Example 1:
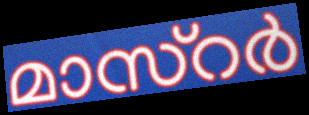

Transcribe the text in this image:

മാസ്റർ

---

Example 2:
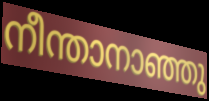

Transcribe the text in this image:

നീന്താനാഞ്ഞു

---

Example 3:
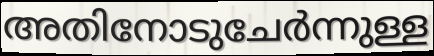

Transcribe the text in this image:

അതിനോടുചേർന്നുള്ള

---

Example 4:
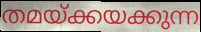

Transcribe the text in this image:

തമയ്ക്കയക്കുന്ന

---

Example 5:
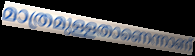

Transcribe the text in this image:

മാത്രമുള്ളതാണെന്നാണ്